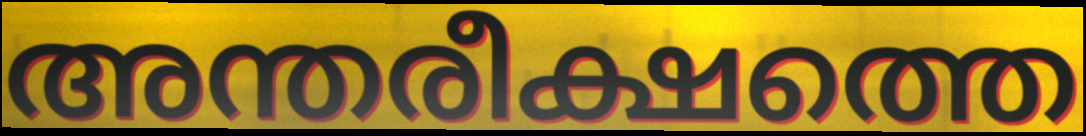
അന്തരീക്ഷത്തെ